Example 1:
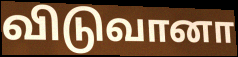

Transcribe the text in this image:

விடுவானா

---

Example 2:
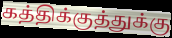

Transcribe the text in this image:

கத்திக்குத்துக்கு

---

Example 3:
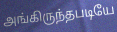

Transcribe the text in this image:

அங்கிருந்தபடியே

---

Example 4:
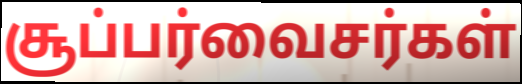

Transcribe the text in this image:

சூப்பர்வைசர்கள்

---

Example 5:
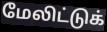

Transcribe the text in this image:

மேலிட்டுக்